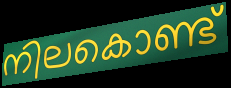
നിലകൊണ്ട്